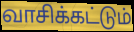
வாசிக்கட்டும்